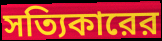
সত্যিকারের